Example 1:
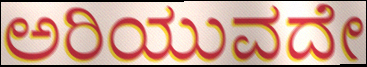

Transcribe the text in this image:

ಅರಿಯುವದೇ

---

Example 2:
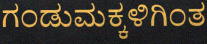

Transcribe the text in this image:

ಗಂಡುಮಕ್ಕಳಿಗಿಂತ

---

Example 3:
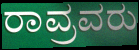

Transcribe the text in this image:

ರಾವ್ರವರು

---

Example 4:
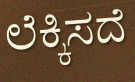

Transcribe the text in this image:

ಲೆಕ್ಕಿಸದೆ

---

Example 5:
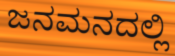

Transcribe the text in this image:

ಜನಮನದಲ್ಲಿ